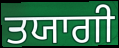
ਤਯਾਗੀ